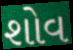
શોવ